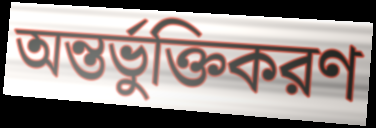
অন্তর্ভুক্তিকরণ